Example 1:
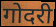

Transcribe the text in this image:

गोदरी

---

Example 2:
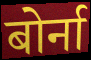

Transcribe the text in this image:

बोर्ना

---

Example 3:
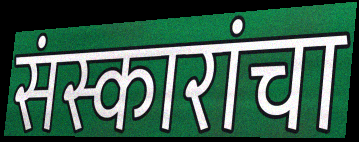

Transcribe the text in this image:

संस्कारांचा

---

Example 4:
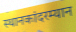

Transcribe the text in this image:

स्थानकांदरम्यान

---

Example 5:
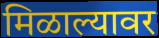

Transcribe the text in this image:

मिळाल्यावर